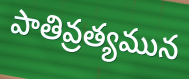
పాతివ్రత్యమున